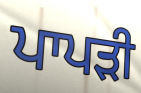
ਪਾਪੜੀ